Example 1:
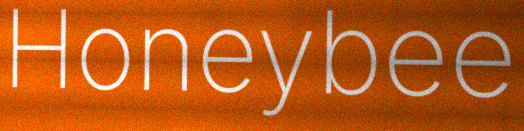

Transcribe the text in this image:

Honeybee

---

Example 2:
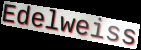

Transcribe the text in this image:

Edelweiss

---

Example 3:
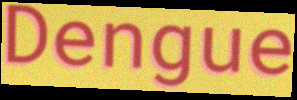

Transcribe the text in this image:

Dengue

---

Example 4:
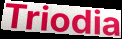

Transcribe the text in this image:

Triodia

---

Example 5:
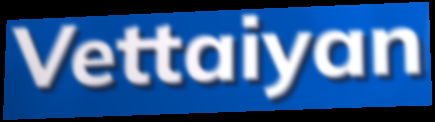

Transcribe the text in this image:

Vettaiyan